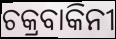
ଚକ୍ରବାକିନୀ